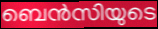
ബെൻസിയുടെ